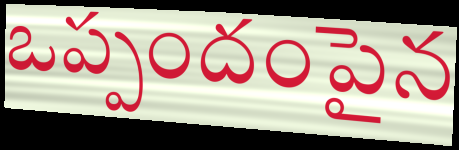
ఒప్పందంపైన